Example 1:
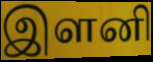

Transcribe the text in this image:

இளனி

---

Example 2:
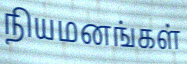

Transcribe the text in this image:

நியமனங்கள்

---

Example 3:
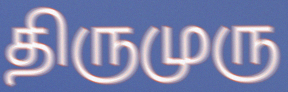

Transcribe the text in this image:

திருமுரு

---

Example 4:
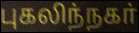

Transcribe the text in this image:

புகலிந்நகர்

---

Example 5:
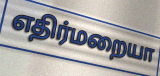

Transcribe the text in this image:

எதிர்மறையா